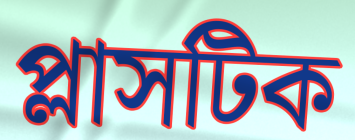
প্লাসটিক